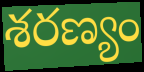
శరణ్యం